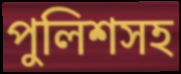
পুলিশসহ